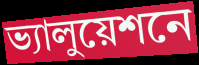
ভ্যালুয়েশনে